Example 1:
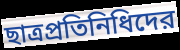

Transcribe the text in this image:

ছাত্রপ্রতিনিধিদের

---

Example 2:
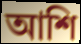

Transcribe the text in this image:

আশি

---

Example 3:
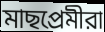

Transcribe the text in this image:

মাছপ্রেমীরা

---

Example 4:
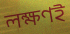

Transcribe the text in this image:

লক্ষণই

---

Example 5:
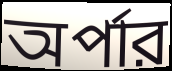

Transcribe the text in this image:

অর্পার